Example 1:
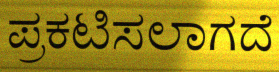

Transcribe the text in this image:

ಪ್ರಕಟಿಸಲಾಗದೆ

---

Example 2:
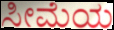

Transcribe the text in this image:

ಸೀಮೆಯ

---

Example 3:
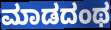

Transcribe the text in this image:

ಮಾಡದಂಥ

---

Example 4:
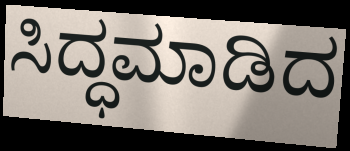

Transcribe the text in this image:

ಸಿದ್ಧಮಾಡಿದ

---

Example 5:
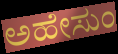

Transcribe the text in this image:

ಅಹೇಸುಂ